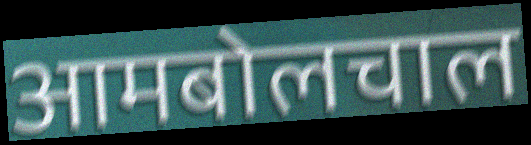
आमबोलचाल